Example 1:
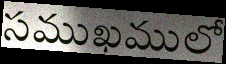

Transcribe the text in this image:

సముఖములో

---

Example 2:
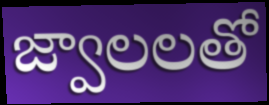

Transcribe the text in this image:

జ్వాలలతో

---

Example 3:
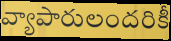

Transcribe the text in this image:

వ్యాపారులందరికీ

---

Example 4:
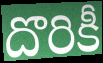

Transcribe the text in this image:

దొరికీ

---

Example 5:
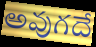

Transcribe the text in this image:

అవుగదే